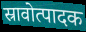
स्रावोत्पादक